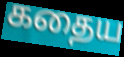
கதைய